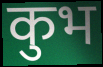
कुभ